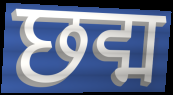
छद्म